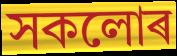
সকলোৰ